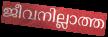
ജീവനില്ലാത്ത